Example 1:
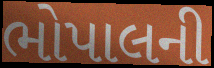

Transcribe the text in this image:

ભોપાલની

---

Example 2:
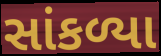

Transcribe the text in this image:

સાંકળ્યા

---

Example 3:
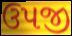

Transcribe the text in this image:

ઉપજી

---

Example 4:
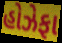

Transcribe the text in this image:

હોઝેફા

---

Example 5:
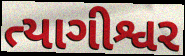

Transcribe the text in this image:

ત્યાગીશ્વર